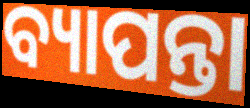
ବ୍ୟାପନ୍ତା